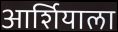
आर्शियाला